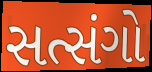
સત્સંગો